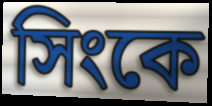
সিংকে